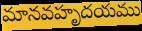
మానవహృదయము